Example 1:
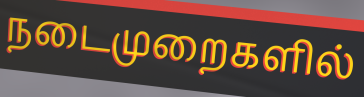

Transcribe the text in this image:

நடைமுறைகளில்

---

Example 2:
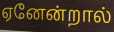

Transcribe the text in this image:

ஏனேன்றால்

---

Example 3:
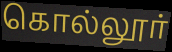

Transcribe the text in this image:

கொல்லூர்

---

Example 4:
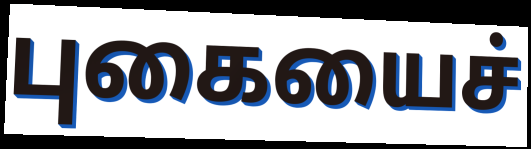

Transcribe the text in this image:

புகையைச்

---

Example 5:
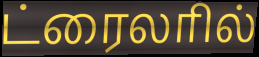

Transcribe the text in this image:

ட்ரைலரில்